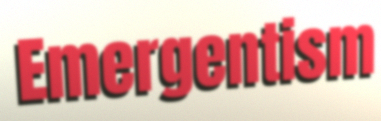
Emergentism